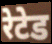
रेटेड